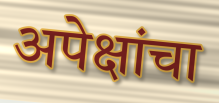
अपेक्षांचा